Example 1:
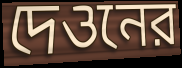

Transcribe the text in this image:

দেওনের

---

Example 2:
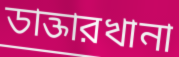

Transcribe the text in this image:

ডাক্তারখানা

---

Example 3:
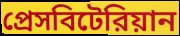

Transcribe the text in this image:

প্রেসবিটেরিয়ান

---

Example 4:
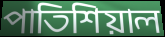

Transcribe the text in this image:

পাতিশিয়াল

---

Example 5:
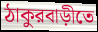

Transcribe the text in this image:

ঠাকুরবাড়ীতে